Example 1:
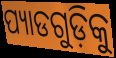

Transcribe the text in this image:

ପ୍ୟାଡଗୁଡ଼ିକୁ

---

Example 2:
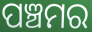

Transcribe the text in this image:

ପଞ୍ଚମର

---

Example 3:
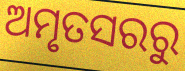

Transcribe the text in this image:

ଅମୃତସରରୁ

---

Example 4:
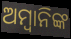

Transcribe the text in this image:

ଅମ୍ବାନିଙ୍କ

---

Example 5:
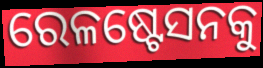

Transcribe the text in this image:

ରେଳଷ୍ଟେସନକୁ